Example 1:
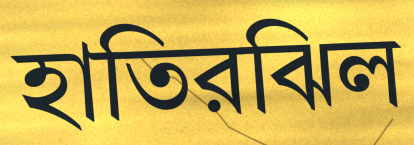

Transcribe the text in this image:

হাতিরঝিল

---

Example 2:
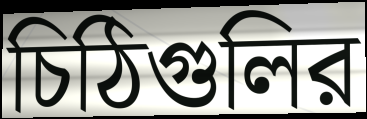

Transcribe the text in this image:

চিঠিগুলির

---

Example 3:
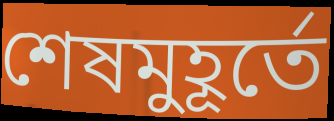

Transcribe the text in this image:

শেষমুহূর্তে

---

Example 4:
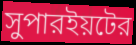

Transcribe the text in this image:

সুপারইয়টের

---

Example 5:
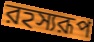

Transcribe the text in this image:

রহস্যরূপ